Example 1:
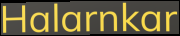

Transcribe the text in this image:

Halarnkar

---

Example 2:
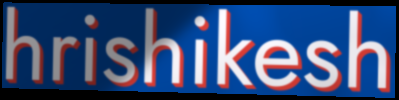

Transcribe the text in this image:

hrishikesh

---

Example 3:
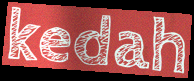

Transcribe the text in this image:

kedah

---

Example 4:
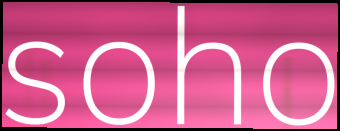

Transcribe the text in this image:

soho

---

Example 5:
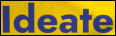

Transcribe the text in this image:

Ideate